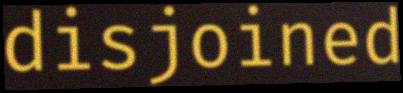
disjoined